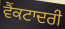
ਵੈਂਕਟਾਦਰੀ